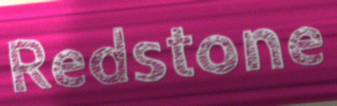
Redstone